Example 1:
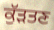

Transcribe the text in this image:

ਕੁੱੜਤਣ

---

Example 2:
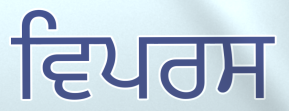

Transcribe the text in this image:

ਵਿਪਰਸ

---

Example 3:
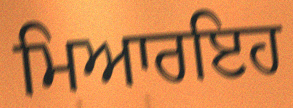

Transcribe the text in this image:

ਮਿਆਰਇਹ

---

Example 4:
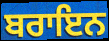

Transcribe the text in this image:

ਬਰਾਇਨ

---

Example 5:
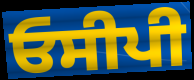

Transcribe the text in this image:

ਓਸੀਪੀ